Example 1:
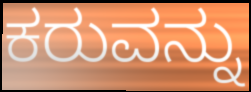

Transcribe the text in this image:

ಕರುವನ್ನು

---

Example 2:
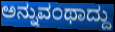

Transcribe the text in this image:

ಅನ್ನುವಂಥಾದ್ದು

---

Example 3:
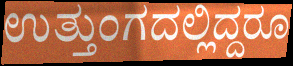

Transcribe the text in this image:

ಉತ್ತುಂಗದಲ್ಲಿದ್ದರೂ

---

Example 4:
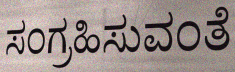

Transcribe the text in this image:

ಸಂಗ್ರಹಿಸುವಂತೆ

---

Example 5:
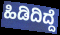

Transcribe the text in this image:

ಹಿಡಿದಿದ್ದೆ